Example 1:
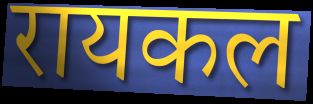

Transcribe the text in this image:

रायकल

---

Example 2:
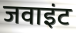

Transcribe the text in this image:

जवाइंट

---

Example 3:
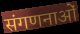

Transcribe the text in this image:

संगणनाओं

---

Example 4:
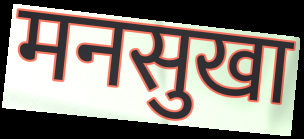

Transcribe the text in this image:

मनसुखा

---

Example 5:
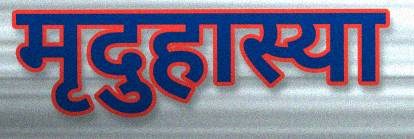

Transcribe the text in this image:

मृदुहास्या